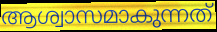
ആശ്വാസമാകുന്നത്